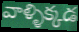
వాళ్ళిక్కడ